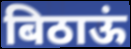
बिठाऊं